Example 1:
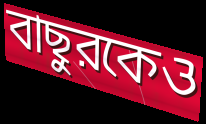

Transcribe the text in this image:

বাছুরকেও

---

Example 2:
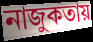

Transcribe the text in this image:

নাজুকতায়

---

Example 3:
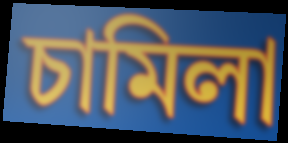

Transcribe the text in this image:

চামিলা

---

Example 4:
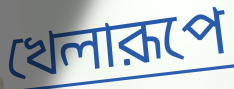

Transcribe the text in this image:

খেলারূপে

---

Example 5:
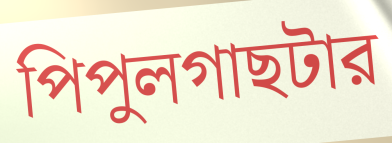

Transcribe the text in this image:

পিপুলগাছটার